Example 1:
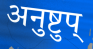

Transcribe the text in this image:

अनुष्टुप्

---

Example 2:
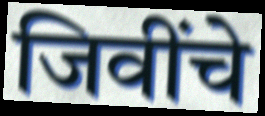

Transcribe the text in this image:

जिवींचे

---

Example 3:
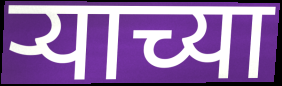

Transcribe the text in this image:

ऱ्याच्या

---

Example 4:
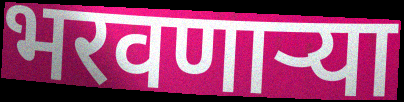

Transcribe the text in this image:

भरवणाऱ्या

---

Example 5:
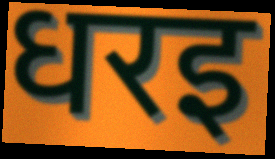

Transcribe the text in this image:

धरइ